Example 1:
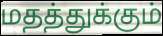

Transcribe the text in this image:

மதத்துக்கும்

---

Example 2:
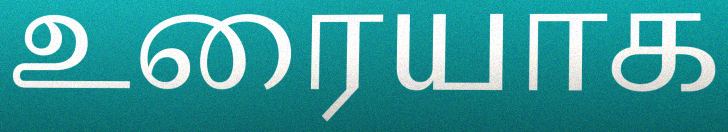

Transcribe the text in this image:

உரையாக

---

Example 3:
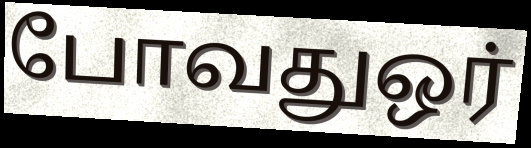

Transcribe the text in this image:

போவதுஒர்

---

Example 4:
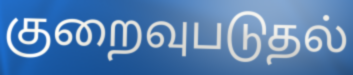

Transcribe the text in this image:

குறைவுபடுதல்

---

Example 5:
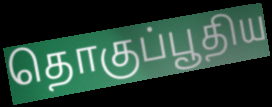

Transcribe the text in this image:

தொகுப்பூதிய